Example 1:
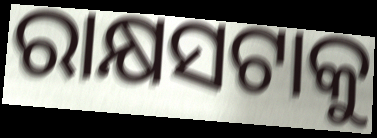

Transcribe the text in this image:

ରାକ୍ଷସଟାକୁ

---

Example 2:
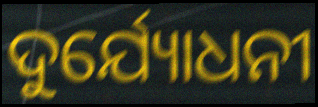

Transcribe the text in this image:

ଦୁର୍ଯ୍ୟୋଧନୀ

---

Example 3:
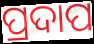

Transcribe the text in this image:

ପ୍ରଦାପ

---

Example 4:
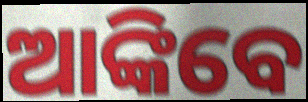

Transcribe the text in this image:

ଆଙ୍କିବେ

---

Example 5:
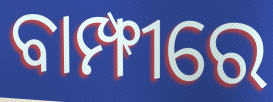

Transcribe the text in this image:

ବାମ୍ଫୀରେ